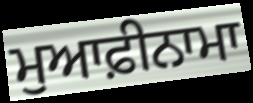
ਮੁਆਫ਼ੀਨਾਮਾ